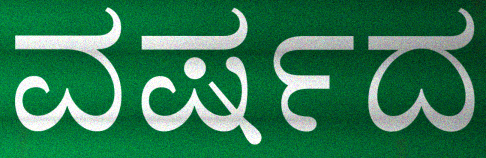
ವರ್ಷದ